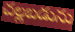
చల్లబడును